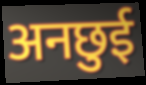
अनछुई